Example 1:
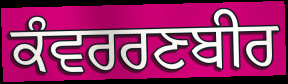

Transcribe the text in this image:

ਕੰਵਰਰਣਬੀਰ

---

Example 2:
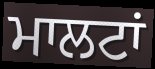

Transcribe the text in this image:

ਮਾਲਟਾਂ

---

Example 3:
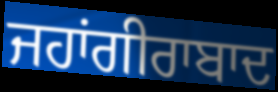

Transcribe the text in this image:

ਜਹਾਂਗੀਰਾਬਾਦ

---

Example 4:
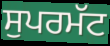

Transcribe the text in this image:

ਸੁਪਰਮੱਟ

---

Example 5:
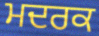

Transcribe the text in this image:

ਮਦਰਕ